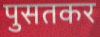
पुसतकर